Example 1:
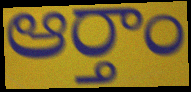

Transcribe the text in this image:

ఆర్తాం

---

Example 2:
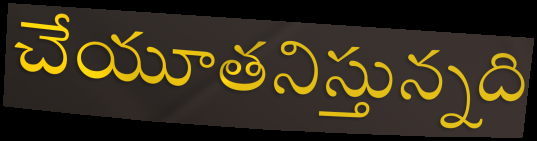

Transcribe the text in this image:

చేయూతనిస్తున్నది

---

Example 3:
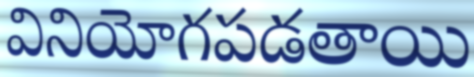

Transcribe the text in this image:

వినియోగపడతాయి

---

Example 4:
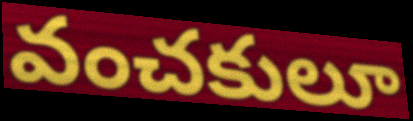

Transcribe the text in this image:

వంచకులూ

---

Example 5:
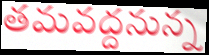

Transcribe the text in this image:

తమవద్దనున్న